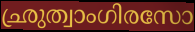
ഛ്രുത്വാംഗിരസോ